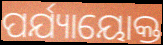
ପର୍ଯ୍ୟାୟୋକ୍ତ